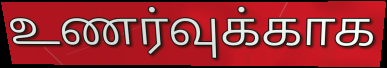
உணர்வுக்காக